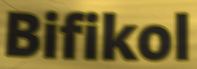
Bifikol